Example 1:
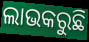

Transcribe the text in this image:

ଲାଭକରୁଛି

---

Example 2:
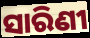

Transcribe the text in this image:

ସାରିଣୀ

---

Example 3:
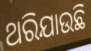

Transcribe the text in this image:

ଥରିଯାଉଛି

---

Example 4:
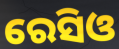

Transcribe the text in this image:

ରେସିଓ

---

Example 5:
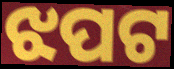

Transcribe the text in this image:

ଝପଟ